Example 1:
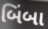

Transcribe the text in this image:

બિંબા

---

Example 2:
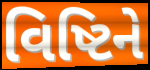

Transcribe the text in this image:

વિષ્ટિને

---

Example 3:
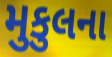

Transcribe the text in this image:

મુકુલના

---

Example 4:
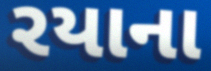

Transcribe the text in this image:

રયાના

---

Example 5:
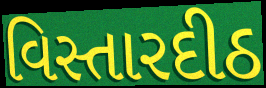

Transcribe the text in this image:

વિસ્તારદીઠ